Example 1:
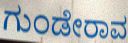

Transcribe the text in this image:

ಗುಂಡೇರಾವ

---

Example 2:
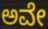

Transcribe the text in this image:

ಅವೇ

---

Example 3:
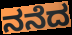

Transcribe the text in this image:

ನನೆದ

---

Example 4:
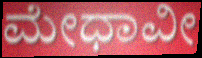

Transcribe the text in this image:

ಮೇಧಾವೀ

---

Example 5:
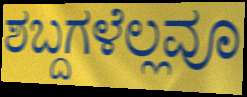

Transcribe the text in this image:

ಶಬ್ದಗಳೆಲ್ಲವೂ